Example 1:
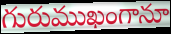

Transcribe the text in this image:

గురుముఖంగానూ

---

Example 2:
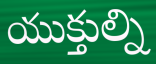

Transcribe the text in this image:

యుక్తుల్ని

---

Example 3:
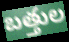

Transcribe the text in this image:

బత్తుల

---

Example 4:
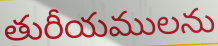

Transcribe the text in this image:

తురీయములను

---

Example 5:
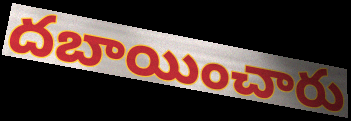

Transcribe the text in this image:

దబాయించారు